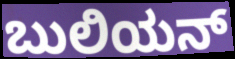
ಬುಲಿಯನ್